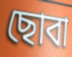
ছোবা